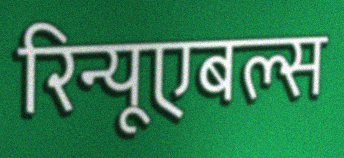
रिन्यूएबल्स